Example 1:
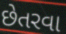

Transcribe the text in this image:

છેતરવા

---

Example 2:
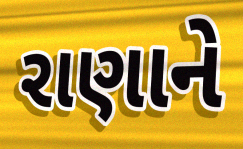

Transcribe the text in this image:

રાણાને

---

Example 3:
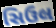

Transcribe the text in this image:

સિઉલ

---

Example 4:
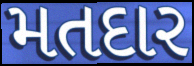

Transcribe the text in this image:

મતદાર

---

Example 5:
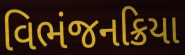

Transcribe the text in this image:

વિભંજનક્રિયા